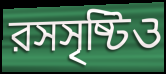
রসসৃষ্টিও